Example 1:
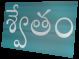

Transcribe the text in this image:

శ్వేతం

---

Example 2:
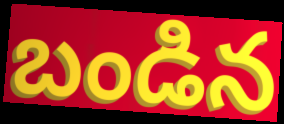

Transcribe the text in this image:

బండిన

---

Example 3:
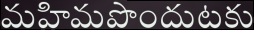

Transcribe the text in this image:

మహిమపొందుటకు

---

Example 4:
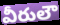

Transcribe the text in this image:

వీరులౌ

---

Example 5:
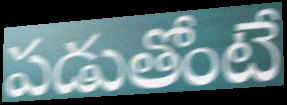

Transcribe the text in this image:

పడుతోంటే